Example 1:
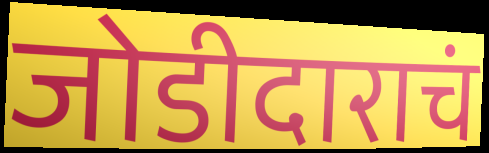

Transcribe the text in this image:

जोडीदाराचं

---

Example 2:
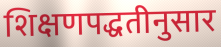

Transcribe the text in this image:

शिक्षणपद्धतीनुसार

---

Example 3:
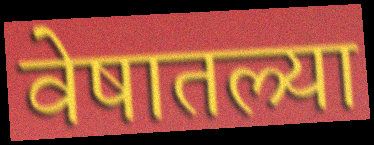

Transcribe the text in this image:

वेषातल्या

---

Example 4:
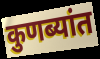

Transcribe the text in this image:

कुणब्यांत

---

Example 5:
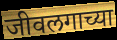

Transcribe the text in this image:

जीवलगाच्या